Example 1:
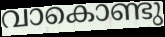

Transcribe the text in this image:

വാകൊണ്ടു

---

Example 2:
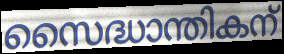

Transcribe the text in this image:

സൈദ്ധാന്തികന്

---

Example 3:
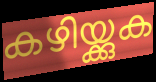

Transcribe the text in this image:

കഴിയ്ക്കുക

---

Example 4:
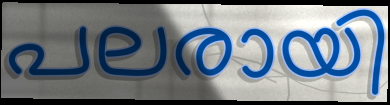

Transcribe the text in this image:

പലരായി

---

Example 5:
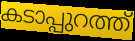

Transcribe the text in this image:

കടാപ്പുറത്ത്